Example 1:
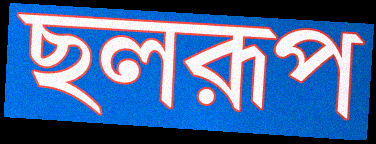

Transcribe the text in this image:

ছলরূপ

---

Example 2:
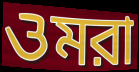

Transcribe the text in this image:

ওমরা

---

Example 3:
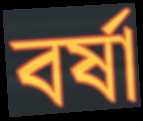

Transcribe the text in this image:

বর্ষা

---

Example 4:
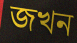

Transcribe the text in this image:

জখন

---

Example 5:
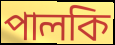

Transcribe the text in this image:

পালকি